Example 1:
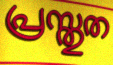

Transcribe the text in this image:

പ്രസ്തുത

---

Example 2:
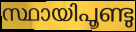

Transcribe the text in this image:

സ്ഥായിപൂണ്ടു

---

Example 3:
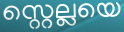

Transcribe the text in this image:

സ്റ്റെല്ലയെ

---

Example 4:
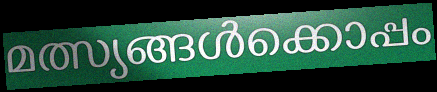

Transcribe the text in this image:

മത്സ്യങ്ങൾക്കൊപ്പം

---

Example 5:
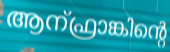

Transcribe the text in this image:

ആന്ഫ്രാങ്കിന്റെ